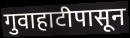
गुवाहाटीपासून